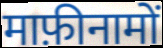
माफ़ीनामों